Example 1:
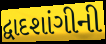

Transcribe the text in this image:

દ્વાદશાંગીની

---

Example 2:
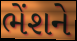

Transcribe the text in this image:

ભેંશને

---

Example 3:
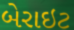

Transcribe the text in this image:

બેરાઇટ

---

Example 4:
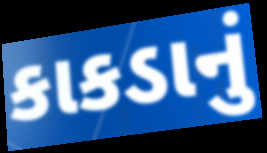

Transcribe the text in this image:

કાકડાનું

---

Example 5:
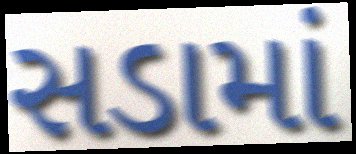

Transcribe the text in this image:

સડામાં